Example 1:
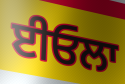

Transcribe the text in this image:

ਈਓਲਾ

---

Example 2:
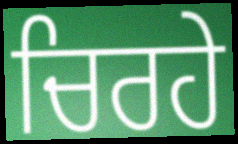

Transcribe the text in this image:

ਚਿਰਹੇ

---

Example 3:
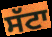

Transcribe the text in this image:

ਸੱਟਾ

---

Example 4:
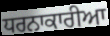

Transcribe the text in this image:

ਧਰਨਾਕਾਰੀਆ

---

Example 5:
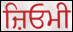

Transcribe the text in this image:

ਜ਼ਿਓਮੀ